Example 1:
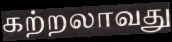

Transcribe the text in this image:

கற்றலாவது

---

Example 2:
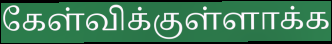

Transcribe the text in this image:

கேள்விக்குள்ளாக்க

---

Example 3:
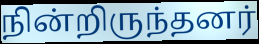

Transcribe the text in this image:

நின்றிருந்தனர்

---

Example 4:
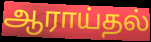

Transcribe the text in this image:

ஆராய்தல்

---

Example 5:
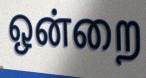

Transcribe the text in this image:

ஒன்றை